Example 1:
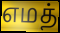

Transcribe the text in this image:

எமத்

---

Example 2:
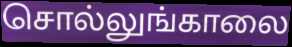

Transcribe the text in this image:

சொல்லுங்காலை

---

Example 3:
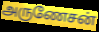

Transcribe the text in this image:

அருணேசன்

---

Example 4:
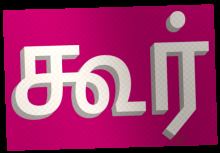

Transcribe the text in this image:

கூர்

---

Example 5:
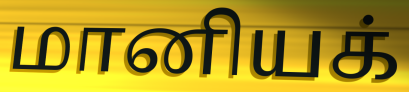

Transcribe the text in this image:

மானியக்